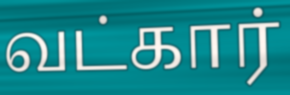
வட்கார்